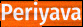
Periyava